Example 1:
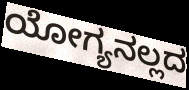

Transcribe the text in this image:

ಯೋಗ್ಯನಲ್ಲದ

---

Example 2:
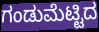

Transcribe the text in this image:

ಗಂಡುಮೆಟ್ಟಿದ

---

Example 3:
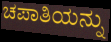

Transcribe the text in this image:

ಚಪಾತಿಯನ್ನು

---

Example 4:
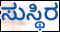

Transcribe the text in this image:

ಸುಸ್ಥಿರ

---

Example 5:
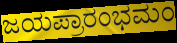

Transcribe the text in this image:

ಜಯಪ್ರಾರಂಭಮಂ